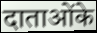
दाताओंके